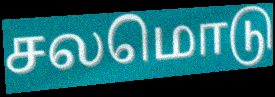
சலமொடு